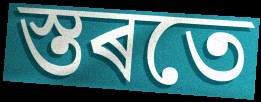
স্তৰতে